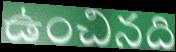
ఉంచినది